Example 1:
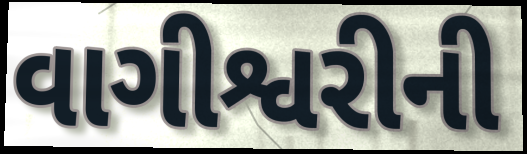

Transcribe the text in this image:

વાગીશ્વરીની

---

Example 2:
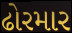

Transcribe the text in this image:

ઢોરમાર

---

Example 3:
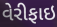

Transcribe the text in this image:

વેરીફાઇ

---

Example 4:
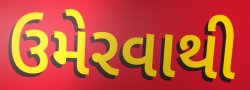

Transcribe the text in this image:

ઉમેરવાથી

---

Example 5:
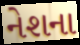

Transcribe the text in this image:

નેશના